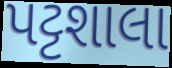
પટ્ટશાલા